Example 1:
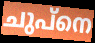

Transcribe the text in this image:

ചുപ്നെ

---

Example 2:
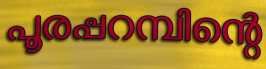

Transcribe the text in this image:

പൂരപ്പറമ്പിന്റെ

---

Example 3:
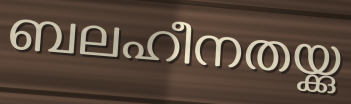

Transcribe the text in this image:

ബലഹീനതയ്ക്കു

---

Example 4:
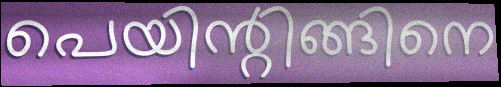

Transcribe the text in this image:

പെയിന്റിങ്ങിനെ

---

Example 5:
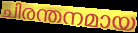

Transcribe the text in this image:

ചിരന്തനമായ